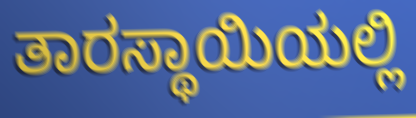
ತಾರಸ್ಥಾಯಿಯಲ್ಲಿ